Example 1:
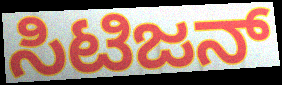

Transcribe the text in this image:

ಸಿಟಿಜನ್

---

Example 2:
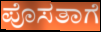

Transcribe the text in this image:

ಪೊಸತಾಗೆ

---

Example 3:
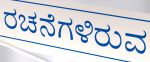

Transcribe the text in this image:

ರಚನೆಗಳಿರುವ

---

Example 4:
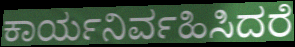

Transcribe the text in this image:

ಕಾರ್ಯನಿರ್ವಹಿಸಿದರೆ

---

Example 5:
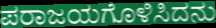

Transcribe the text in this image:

ಪರಾಜಯಗೊಳಿಸಿದನು